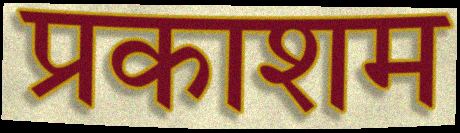
प्रकाशम